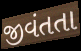
જીવંતતા